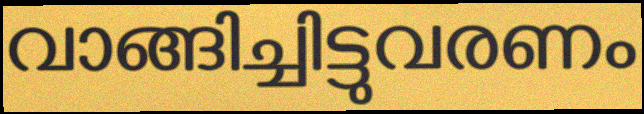
വാങ്ങിച്ചിട്ടുവരണം